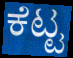
ಕೆಟ್ಟ